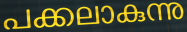
പക്കലാകുന്നു